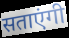
सताएंगी